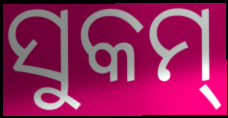
ସୁକମ୍